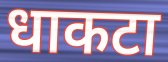
धाकटा